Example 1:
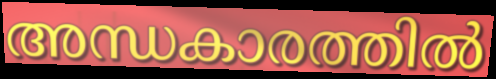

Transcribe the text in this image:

അന്ധകാരത്തിൽ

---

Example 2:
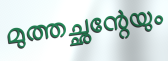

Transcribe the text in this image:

മുത്തച്ഛന്റേയും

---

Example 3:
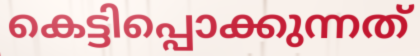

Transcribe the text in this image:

കെട്ടിപ്പൊക്കുന്നത്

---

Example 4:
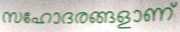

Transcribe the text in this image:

സഹോദരങ്ങളാണ്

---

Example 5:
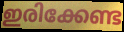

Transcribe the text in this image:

ഇരിക്കേണ്ട